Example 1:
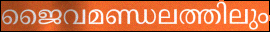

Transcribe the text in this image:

ജൈവമണ്ഡലത്തിലും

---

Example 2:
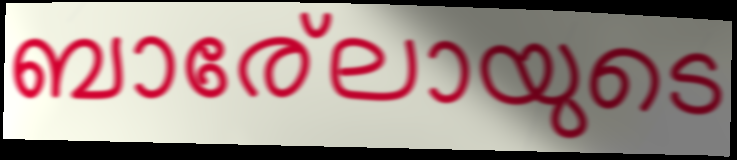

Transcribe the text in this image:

ബാര്ലോയുടെ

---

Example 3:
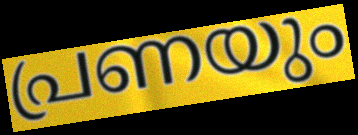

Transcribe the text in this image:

പ്രണയും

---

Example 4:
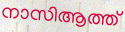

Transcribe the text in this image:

നാസിആത്ത്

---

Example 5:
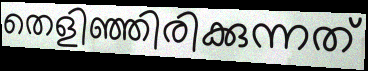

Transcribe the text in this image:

തെളിഞ്ഞിരിക്കുന്നത്